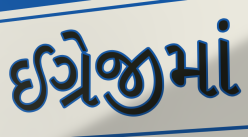
ઈગ્રેજીમાં